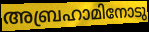
അബ്രഹാമിനോടു